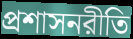
প্রশাসনরীতি